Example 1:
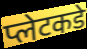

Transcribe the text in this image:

प्लेटकडे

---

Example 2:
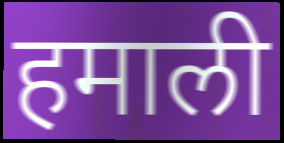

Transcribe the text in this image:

हमाली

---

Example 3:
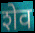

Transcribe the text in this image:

शेव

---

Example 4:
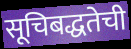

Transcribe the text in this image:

सूचिबद्धतेची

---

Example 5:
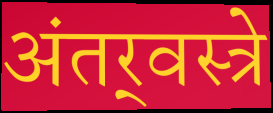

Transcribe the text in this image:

अंतर्वस्त्रे